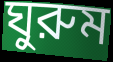
ঘুরুম